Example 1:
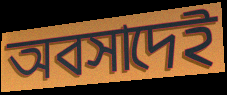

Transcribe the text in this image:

অবসাদেই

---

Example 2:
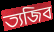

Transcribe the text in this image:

ত্যজিব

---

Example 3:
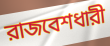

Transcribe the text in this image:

রাজবেশধারী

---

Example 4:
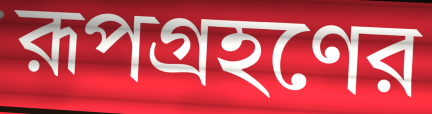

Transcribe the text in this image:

রূপগ্রহণের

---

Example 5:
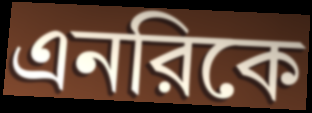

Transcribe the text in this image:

এনরিকে